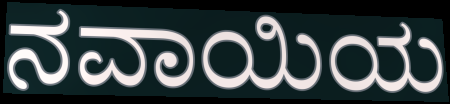
ನವಾಯಿಯ